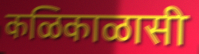
कळिकाळासी